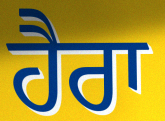
ਹੈਰਾ